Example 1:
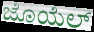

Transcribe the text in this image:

ಜೊಯೆಲ್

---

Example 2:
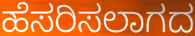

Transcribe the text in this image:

ಹೆಸರಿಸಲಾಗದ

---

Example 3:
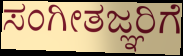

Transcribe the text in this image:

ಸಂಗೀತಜ್ಞರಿಗೆ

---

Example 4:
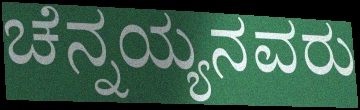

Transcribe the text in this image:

ಚೆನ್ನಯ್ಯನವರು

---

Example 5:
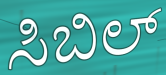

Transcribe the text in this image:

ಸಿಬಿಲ್